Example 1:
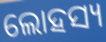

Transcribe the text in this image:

ଲୋହସ୍ୟ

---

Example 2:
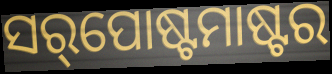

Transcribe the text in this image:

ସର୍‌ପୋଷ୍ଟମାଷ୍ଟର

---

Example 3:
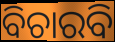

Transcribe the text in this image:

ବିଚାରବି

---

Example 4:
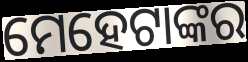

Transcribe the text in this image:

ମେହେଟାଙ୍କର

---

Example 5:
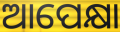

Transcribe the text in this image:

ଆପେକ୍ଷା